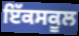
ਇੱਕਸਕੂਲ